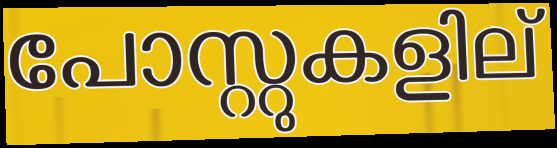
പോസ്റ്റുകളില്